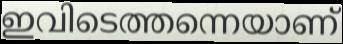
ഇവിടെത്തന്നെയാണ്